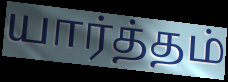
யார்த்தம்